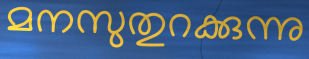
മനസുതുറക്കുന്നു